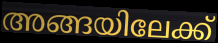
അങ്ങയിലേക്ക്